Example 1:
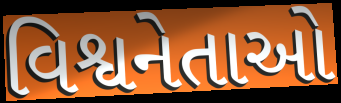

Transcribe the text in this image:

વિશ્વનેતાઓ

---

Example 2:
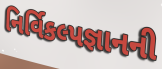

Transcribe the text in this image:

નિર્વિકલ્પજ્ઞાનની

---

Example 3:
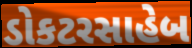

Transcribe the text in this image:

ડોકટરસાહેબ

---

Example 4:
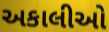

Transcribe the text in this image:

અકાલીઓ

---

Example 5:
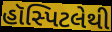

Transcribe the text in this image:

હૉસ્પિટલેથી